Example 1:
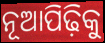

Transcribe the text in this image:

ନୂଆପିଢ଼ିକୁ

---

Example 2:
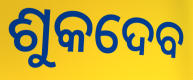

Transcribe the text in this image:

ଶୁକଦେବ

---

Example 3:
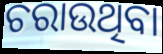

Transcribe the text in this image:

ଚରାଉଥିବା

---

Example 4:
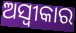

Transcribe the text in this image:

ଅସ୍ୱୀକାର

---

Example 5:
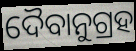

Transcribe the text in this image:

ଦୈବାନୁଗ୍ରହ